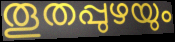
തൂതപ്പുഴയും